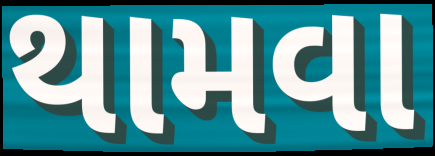
થામવા